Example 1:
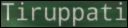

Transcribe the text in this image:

Tiruppati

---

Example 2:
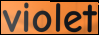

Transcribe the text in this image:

violet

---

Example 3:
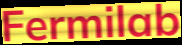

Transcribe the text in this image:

Fermilab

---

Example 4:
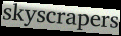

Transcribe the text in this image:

skyscrapers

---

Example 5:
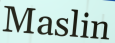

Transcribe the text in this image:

Maslin